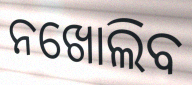
ନଖୋଲିବ